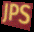
JPS